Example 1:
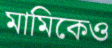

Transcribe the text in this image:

মামিকেও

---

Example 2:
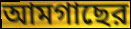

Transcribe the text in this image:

আমগাছের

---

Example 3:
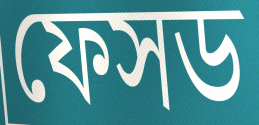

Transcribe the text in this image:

ফেসড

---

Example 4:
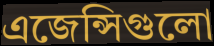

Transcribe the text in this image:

এজেন্সিগুলো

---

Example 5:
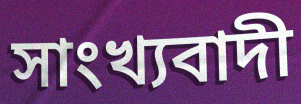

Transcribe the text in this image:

সাংখ্যবাদী